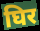
घिर